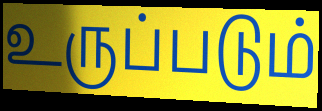
உருப்படும்